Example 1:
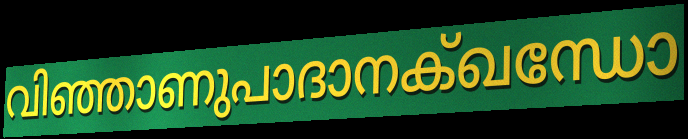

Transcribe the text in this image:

വിഞ്ഞാണുപാദാനക്ഖന്ധോ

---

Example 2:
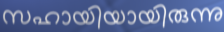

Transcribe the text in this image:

സഹായിയായിരുന്നു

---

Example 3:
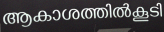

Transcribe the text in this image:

ആകാശത്തിൽകൂടി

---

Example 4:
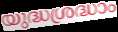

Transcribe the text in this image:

യുദ്ധശ്രദ്ധാം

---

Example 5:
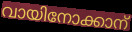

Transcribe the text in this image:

വായിനോക്കാന്